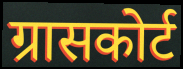
ग्रासकोर्ट